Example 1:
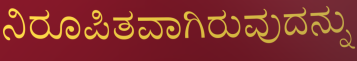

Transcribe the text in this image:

ನಿರೂಪಿತವಾಗಿರುವುದನ್ನು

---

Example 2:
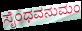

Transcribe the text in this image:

ಸೈಂಧವನುಮಂ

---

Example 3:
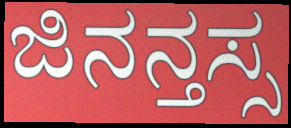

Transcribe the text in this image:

ಜಿನನ್ತಸ್ಸ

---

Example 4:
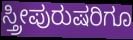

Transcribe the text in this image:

ಸ್ತ್ರೀಪುರುಷರಿಗೂ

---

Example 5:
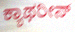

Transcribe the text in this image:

ಕ್ಯಾಥರೀನ್